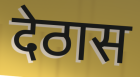
देठास